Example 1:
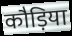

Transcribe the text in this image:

कौड़िया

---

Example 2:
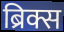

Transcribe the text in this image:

ब्रिक्स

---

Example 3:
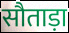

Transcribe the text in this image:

सौताड़ा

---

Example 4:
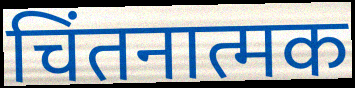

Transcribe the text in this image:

चिंतनात्मक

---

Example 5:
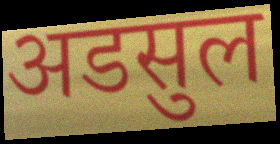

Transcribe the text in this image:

अडसुल